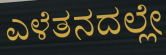
ಎಳೆತನದಲ್ಲೇ